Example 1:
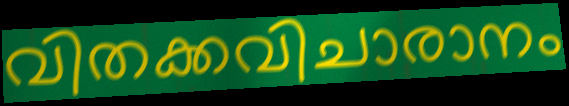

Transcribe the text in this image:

വിതക്കവിചാരാനം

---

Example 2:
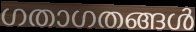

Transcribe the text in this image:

ഗതാഗതങ്ങൾ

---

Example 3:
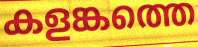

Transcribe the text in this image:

കളങ്കത്തെ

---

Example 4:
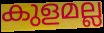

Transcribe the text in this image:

കുളമല്ല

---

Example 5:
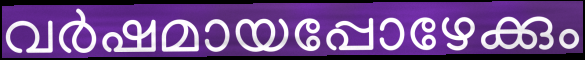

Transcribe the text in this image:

വർഷമായപ്പോഴേക്കും